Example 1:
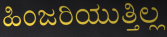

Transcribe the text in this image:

ಹಿಂಜರಿಯುತ್ತಿಲ್ಲ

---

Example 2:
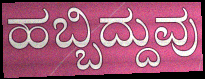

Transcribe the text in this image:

ಹಬ್ಬಿದ್ದುವು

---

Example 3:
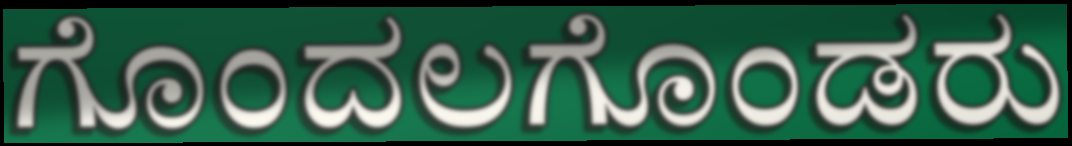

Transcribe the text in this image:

ಗೊಂದಲಗೊಂಡರು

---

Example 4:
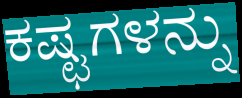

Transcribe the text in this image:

ಕಷ್ಟಗಳನ್ನು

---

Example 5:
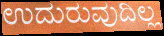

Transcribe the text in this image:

ಉದುರುವುದಿಲ್ಲ